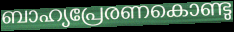
ബാഹ്യപ്രേരണകൊണ്ടു